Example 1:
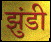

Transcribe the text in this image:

झुंडी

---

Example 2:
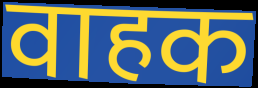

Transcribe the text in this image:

वाहक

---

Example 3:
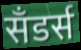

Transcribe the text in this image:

सॅंडर्स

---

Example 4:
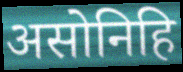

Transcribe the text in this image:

असोनिहि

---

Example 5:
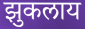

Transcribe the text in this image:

झुकलाय